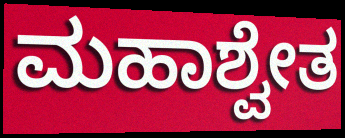
ಮಹಾಶ್ವೇತ